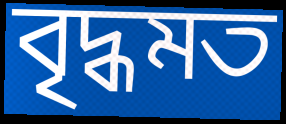
বৃদ্ধমত